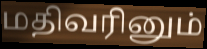
மதிவரினும்